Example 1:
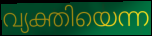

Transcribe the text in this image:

വ്യക്തിയെന്ന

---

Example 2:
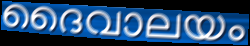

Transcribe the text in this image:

ദൈവാലയം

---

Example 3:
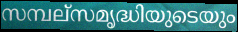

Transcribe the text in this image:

സമ്പല്സമൃദ്ധിയുടെയും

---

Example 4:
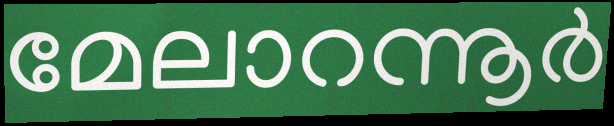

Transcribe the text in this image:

മേലാറന്നൂർ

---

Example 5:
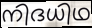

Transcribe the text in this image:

നിദധിഥ